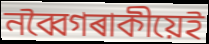
নব্বৈগৰাকীয়েই